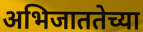
अभिजाततेच्या